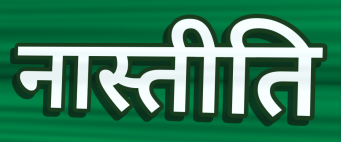
नास्तीति